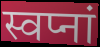
स्वप्नां